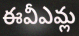
ఈవీఎమ్ల